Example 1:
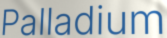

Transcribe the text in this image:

Palladium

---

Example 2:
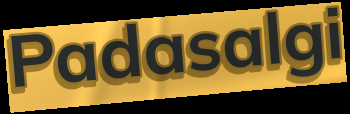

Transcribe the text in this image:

Padasalgi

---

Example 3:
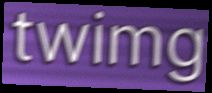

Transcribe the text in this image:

twimg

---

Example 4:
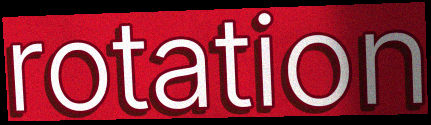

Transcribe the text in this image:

rotation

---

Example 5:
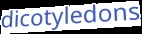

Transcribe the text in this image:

dicotyledons